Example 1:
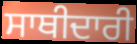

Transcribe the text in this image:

ਸਾਥੀਦਾਰੀ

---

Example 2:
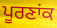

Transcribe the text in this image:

ਪੂਰਣਾਂਕ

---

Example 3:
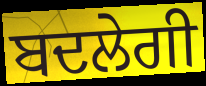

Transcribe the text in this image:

ਬਦਲੇਗੀ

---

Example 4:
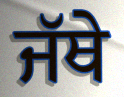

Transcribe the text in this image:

ਜੱਥੇ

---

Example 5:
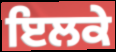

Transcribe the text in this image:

ਇਲਕੇ